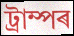
ট্ৰাম্পৰ